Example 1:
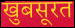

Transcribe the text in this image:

खुबसूरत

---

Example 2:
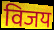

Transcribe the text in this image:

विजय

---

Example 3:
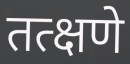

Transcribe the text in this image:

तत्क्षणे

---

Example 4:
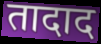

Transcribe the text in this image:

तादाद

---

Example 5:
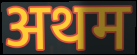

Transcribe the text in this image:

अथम